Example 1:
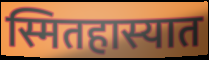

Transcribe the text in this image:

स्मितहास्यात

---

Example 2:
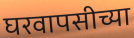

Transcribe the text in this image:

घरवापसीच्या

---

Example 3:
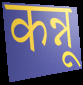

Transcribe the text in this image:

कन्नू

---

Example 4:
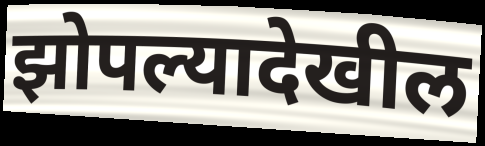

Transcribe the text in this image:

झोपल्यादेखील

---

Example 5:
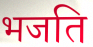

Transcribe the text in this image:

भजति